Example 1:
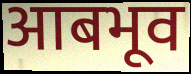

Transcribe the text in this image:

आबभूव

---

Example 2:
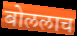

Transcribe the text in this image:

बोललाच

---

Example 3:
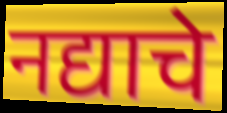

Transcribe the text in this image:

नद्याचे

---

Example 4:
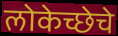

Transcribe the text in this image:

लोकेच्छेचे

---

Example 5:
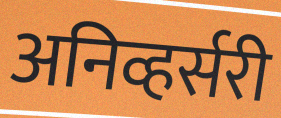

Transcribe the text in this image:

अनिव्हर्सरी